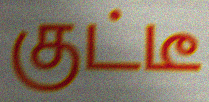
குட்டீ